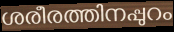
ശരീരത്തിനപ്പുറം